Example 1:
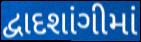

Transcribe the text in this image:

દ્વાદશાંગીમાં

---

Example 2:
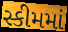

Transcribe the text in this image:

સ્કીમમાં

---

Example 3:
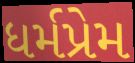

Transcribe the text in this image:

ધર્મપ્રેમ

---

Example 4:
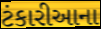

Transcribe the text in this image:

ટંકારીઆના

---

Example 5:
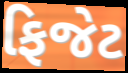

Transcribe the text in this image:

ફિજેટ